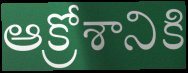
ఆక్రోశానికి